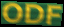
ODF